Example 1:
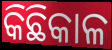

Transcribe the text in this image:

କିଛିକାଳ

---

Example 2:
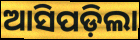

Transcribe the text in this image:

ଆସିପଡ଼ିଲା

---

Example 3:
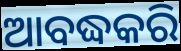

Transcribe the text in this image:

ଆବଦ୍ଧକରି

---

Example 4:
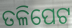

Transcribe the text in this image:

ତଳିପେଟ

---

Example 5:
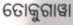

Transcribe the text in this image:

ତୋକୁଗାୱା